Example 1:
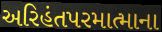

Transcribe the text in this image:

અરિહંતપરમાત્માના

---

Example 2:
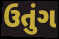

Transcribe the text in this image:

ઉતુંગ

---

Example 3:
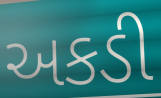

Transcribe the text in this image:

અકડી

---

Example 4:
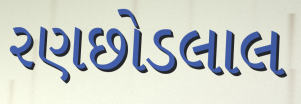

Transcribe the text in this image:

રણછોડલાલ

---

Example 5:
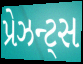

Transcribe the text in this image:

પ્રેઝન્ટ્સ